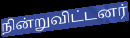
நின்றுவிட்டனர்